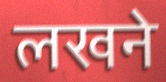
लखने